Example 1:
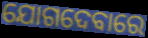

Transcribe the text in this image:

ଯୋଗଦେବାରେ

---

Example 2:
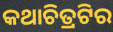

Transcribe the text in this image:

କଥାଚିତ୍ରଟିର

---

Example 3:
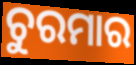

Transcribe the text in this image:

ଚୁରମାର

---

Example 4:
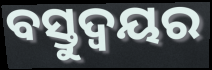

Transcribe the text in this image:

ବସ୍ତୁଦ୍ୱୟର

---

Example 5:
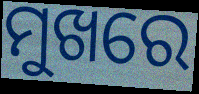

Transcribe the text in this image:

ମୁଖରେ